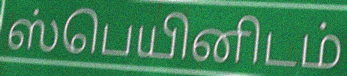
ஸ்பெயினிடம்